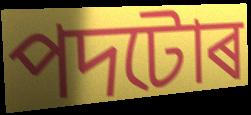
পদটোৰ